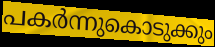
പകർന്നുകൊടുക്കും